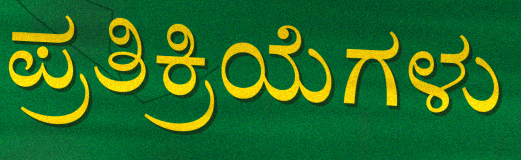
ಪ್ರತಿಕ್ರಿಯೆಗಳು